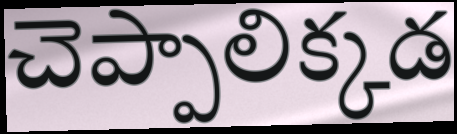
చెప్పాలిక్కడ